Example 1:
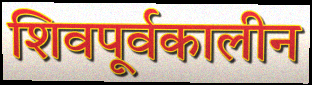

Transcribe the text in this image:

शिवपूर्वकालीन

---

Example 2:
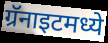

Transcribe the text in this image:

ग्रॅनाइटमध्ये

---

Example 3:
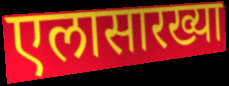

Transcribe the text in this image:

एलासारख्या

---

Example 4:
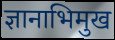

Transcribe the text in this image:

ज्ञानाभिमुख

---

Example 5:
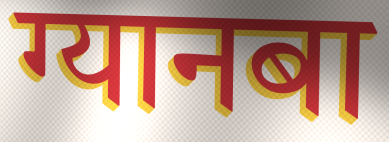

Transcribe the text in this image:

ग्यानबा